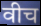
वीच